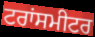
ਟਰਾਂਸਮੀਟਰ